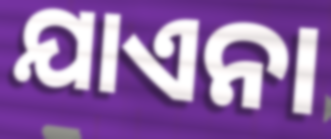
ଯାଏନା